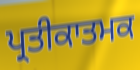
ਪ੍ਰਤੀਕਾਤਮਕ